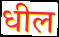
धील